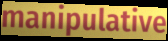
manipulative